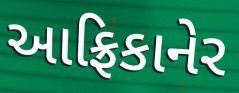
આફ્રિકાનેર